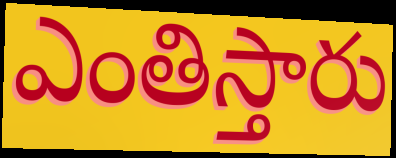
ఎంతిస్తారు